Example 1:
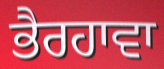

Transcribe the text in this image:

ਭੈਰਹਾਵਾ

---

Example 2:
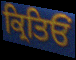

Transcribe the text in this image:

ਕ੍ਰਿਤਿਓਂ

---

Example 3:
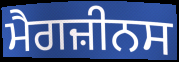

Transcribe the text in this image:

ਮੈਗਜ਼ੀਨਸ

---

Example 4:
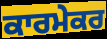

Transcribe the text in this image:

ਕਾਰਮੇਕਰ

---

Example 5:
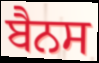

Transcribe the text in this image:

ਬੈਨਸ